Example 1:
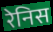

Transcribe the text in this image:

रेनिस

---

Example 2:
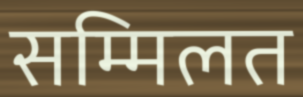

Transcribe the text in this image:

सम्मिलत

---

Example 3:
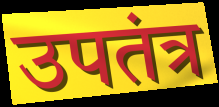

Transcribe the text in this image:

उपतंत्र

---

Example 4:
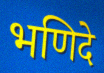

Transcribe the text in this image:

भणिदे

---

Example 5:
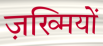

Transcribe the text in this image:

ज़ख्मियों